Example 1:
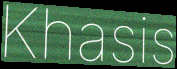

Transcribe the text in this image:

Khasis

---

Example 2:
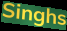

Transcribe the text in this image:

Singhs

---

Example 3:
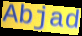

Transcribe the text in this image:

Abjad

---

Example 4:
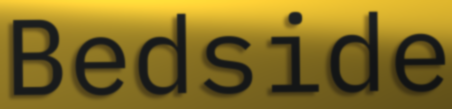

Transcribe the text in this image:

Bedside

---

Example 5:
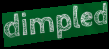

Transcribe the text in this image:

dimpled